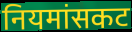
नियमांसकट